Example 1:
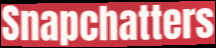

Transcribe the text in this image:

Snapchatters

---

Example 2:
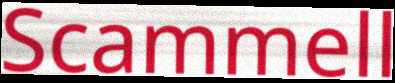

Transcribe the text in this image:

Scammell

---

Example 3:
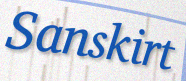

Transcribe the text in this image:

Sanskirt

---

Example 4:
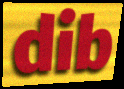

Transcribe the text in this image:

dib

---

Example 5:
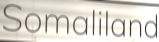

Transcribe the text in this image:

Somaliland